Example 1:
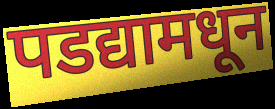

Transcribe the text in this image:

पडद्यामधून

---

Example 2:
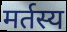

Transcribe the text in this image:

मर्तस्य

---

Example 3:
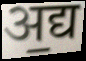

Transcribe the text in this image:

अ॒द्य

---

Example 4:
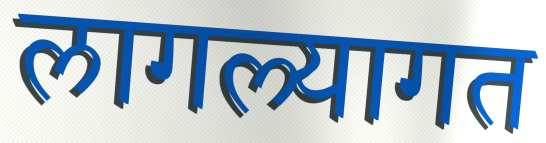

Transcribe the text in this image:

लागल्यागत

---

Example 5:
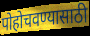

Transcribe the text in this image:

पोहोचवण्यासाठी